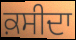
ਕ਼ਸੀਦਾ